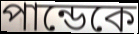
পান্ডেকে